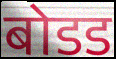
बोडड